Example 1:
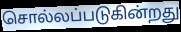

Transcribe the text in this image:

சொல்லப்படுகின்றது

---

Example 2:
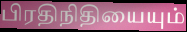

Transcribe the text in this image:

பிரதிநிதியையும்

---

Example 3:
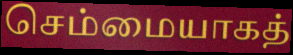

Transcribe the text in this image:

செம்மையாகத்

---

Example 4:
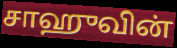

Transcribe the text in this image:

சாஹுவின்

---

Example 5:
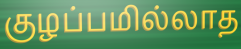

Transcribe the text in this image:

குழப்பமில்லாத